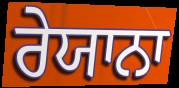
ਰੇਯਾਨਾ